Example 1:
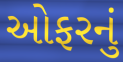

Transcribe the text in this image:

ઓફરનું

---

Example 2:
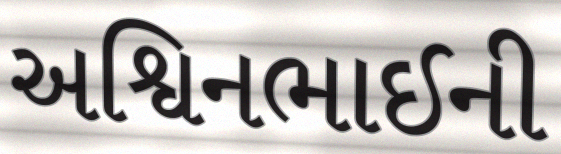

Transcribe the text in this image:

અશ્વિનભાઈની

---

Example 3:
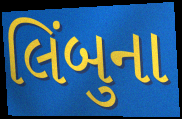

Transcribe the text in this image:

લિંબુના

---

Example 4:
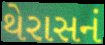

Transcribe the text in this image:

થેરાસનં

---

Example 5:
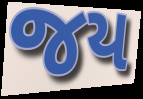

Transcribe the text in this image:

જય